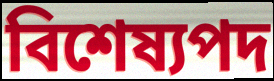
বিশেষ্যপদ